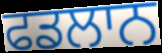
ਫਡਲਾਨ